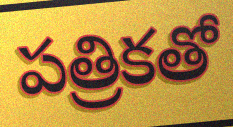
పత్రికతో